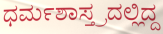
ಧರ್ಮಶಾಸ್ತ್ರದಲ್ಲಿದ್ದ